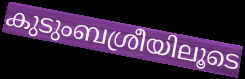
കുടുംബശ്രീയിലൂടെ